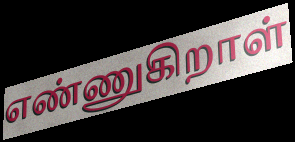
எண்ணுகிறாள்